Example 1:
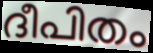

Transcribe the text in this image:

ദീപിതം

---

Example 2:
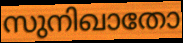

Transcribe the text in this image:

സുനിഖാതോ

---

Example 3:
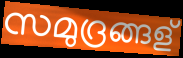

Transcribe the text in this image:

സമുദ്രങ്ങള്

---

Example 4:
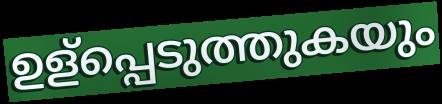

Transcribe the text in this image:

ഉള്പ്പെടുത്തുകയും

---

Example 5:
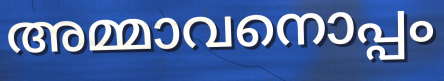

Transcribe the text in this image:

അമ്മാവനൊപ്പം